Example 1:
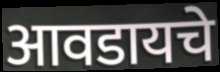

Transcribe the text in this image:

आवडायचे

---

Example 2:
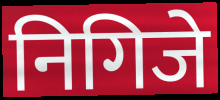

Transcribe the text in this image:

निगिजे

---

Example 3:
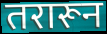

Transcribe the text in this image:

तरारून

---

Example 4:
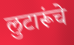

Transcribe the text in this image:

लुटारूंचे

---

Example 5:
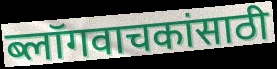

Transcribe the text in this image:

ब्लॉगवाचकांसाठी